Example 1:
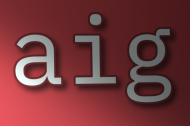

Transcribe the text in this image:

aig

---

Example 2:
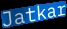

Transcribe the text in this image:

Jatkar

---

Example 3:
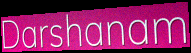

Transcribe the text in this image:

Darshanam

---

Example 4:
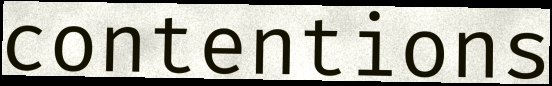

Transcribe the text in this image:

contentions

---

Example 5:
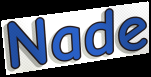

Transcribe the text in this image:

Nade